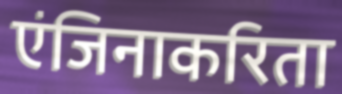
एंजिनाकरिता